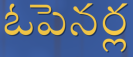
ఓపెనర్ల